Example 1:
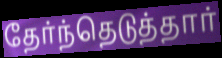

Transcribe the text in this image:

தேர்ந்தெடுத்தார்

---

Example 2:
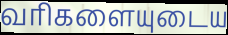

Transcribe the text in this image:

வரிகளையுடைய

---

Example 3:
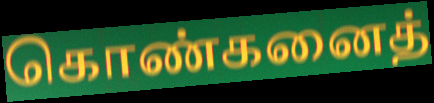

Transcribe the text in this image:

கொண்கனைத்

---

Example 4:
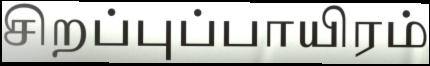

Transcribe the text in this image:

சிறப்புப்பாயிரம்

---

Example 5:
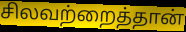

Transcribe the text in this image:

சிலவற்றைத்தான்